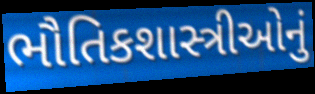
ભૌતિકશાસ્ત્રીઓનું